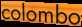
colombo